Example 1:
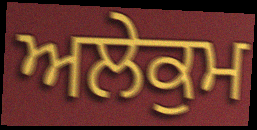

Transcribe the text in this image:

ਅਲੇਕੁਮ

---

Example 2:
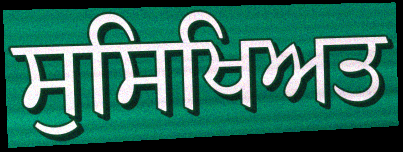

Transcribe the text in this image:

ਸੁਸਿਖਿਅਤ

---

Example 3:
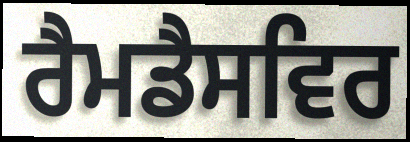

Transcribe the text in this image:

ਰੈਮਡੈਸਵਿਰ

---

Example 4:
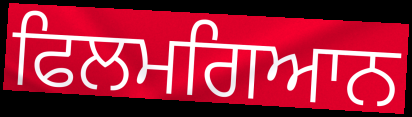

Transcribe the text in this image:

ਫਿਲਮਗਿਆਨ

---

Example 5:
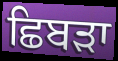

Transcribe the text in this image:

ਛਿਬੜਾ